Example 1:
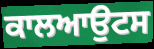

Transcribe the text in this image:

ਕਾਲਆਉਟਸ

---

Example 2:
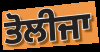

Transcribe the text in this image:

ਤੋਲੀਜਾ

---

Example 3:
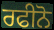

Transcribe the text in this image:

ਰਫੀਨੋ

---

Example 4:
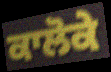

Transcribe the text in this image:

ਕਾਲੋਕੇ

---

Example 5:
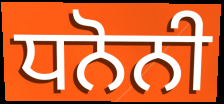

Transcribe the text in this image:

ਧਨੋਨੀ